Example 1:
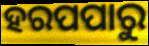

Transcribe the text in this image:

ହରପପାରୁ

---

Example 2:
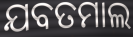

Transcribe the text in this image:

ଯବତମାଲ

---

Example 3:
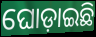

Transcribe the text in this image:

ଘୋଡ଼ାଇଛି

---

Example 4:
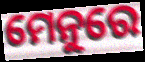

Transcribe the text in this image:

ମେନୁରେ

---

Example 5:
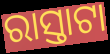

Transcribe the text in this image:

ରାସ୍ତାଟା